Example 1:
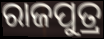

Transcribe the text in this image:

ରାଜପୁତ୍ର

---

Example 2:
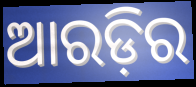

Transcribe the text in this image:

ଆରଡ଼ିର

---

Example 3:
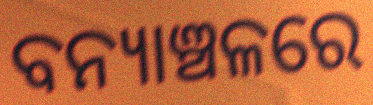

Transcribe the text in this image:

ବନ୍ୟାଞ୍ଚଳରେ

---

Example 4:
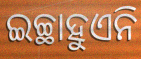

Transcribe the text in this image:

ଇଚ୍ଛାହୁଏନି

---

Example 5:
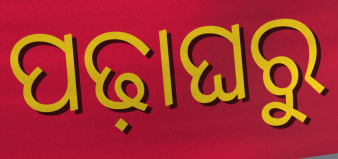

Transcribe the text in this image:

ପଢ଼ାଘରୁ